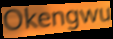
Okengwu